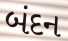
બંદન